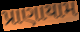
પ્રાણાયામ